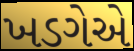
ખડગેએ